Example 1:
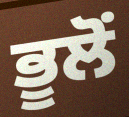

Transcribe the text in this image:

ਭੂਲੋਂ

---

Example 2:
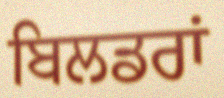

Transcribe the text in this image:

ਬਿਲਡਰਾਂ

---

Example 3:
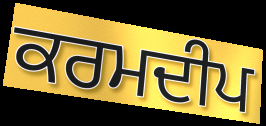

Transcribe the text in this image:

ਕਰਮਦੀਪ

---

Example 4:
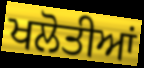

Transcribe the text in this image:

ਖਲੋਤੀਆਂ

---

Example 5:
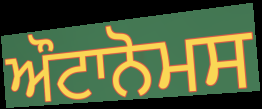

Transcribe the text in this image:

ਔਟਾਨੋਮਸ